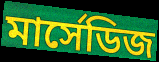
মার্সেডিজ